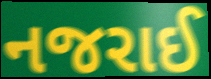
નજરાઈ